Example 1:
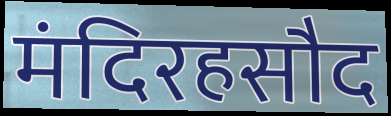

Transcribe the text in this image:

मंदिरहसौद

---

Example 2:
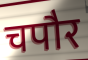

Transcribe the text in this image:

चपौर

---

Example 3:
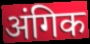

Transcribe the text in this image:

अंगिक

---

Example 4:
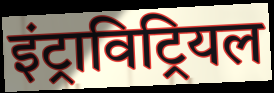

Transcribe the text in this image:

इंट्राविट्रियल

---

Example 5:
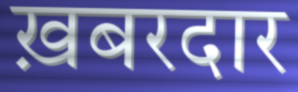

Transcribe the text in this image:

ख़बरदार